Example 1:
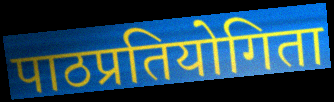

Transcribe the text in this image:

पाठप्रतियोगिता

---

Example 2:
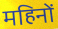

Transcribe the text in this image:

महिनों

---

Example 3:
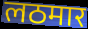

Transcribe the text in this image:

लठमार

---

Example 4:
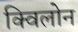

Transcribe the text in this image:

क्विलोन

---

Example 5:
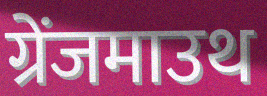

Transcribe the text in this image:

ग्रेंजमाउथ